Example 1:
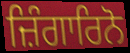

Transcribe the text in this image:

ਜ਼ਿੰਗਾਰਿਨੋ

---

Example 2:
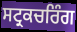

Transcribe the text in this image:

ਸਟ੍ਰਕਚਰਿੰਗ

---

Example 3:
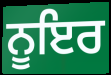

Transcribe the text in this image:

ਨੂਇਰ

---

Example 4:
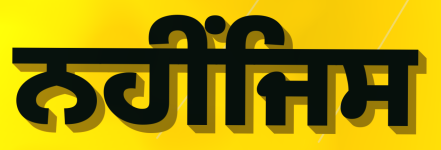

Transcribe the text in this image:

ਨਹੀਂਜਿਸ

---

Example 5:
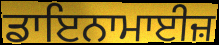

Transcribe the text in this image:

ਡਾਇਨਾਮਾਈਜ਼